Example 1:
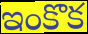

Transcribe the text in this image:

ఇంకొక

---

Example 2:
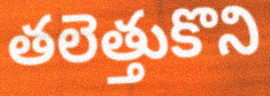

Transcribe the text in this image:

తలెత్తుకొని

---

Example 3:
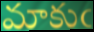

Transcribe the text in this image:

మాకుఁ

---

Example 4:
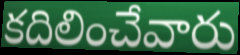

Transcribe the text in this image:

కదిలించేవారు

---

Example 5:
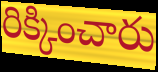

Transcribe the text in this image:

రిక్కించారు